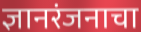
ज्ञानरंजनाचा